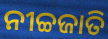
ନୀଚ୍ଚଜାତି